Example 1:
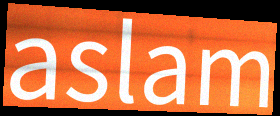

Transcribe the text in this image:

aslam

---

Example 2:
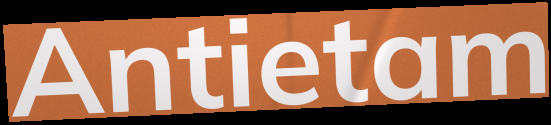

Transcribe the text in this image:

Antietam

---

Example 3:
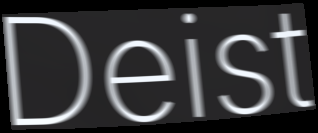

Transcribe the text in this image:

Deist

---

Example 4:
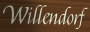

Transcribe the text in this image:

Willendorf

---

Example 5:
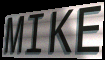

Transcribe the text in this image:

MIKE